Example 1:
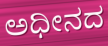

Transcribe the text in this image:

ಅಧೀನದ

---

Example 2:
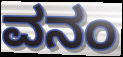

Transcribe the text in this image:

ವನಂ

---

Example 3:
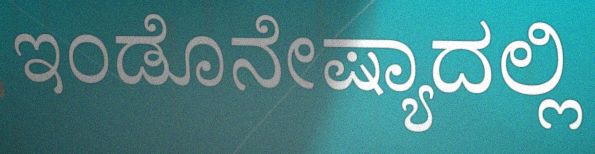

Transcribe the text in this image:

ಇಂಡೊನೇಷ್ಯಾದಲ್ಲಿ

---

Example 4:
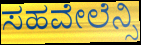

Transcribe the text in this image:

ಸಹವೇಲೆನ್ಸಿ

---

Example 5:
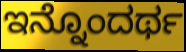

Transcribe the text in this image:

ಇನ್ನೊಂದರ್ಥ